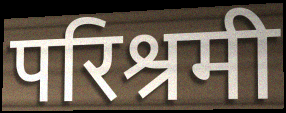
परिश्रमी